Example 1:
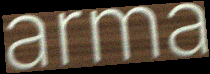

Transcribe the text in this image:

arma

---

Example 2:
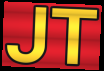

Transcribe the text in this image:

JT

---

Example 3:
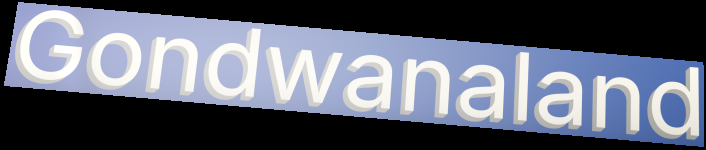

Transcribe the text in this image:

Gondwanaland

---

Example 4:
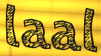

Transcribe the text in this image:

laal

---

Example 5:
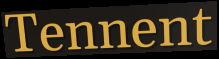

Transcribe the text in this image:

Tennent